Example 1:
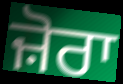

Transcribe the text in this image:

ਜ਼ੋਰਾ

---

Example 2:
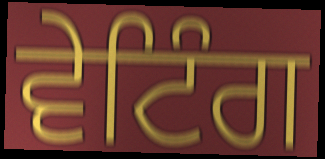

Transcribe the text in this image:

ਵੇਟਿੰਗ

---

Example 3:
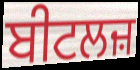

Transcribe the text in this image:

ਬੀਟਲਜ਼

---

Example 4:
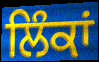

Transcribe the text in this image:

ਲਿੰਕਾਂ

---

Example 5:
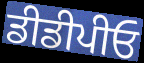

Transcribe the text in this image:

ਡੀਡੀਪੀਓ